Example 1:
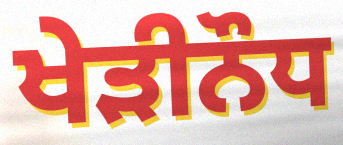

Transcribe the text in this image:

ਖੇੜੀਨੌਧ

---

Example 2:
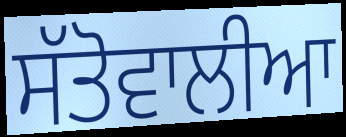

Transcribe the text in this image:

ਸੱਤੋਵਾਲੀਆ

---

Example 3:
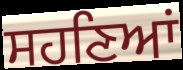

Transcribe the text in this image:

ਸਹਣਿਆਂ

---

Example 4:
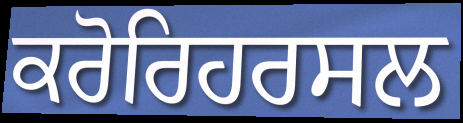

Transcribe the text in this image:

ਕਰੋਰਿਹਰਸਲ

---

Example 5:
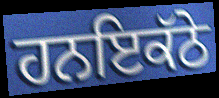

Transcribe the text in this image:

ਹਨਇਕੱਠੇ